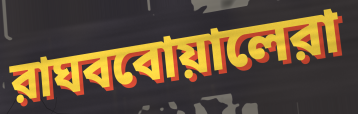
রাঘববোয়ালেরা